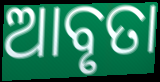
ଆବୃତା